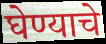
घेण्याचे